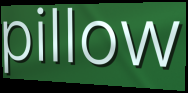
pillow